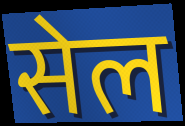
सेल